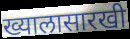
ख्यालासारखी